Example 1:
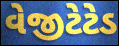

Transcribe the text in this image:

વેજીટેટેડ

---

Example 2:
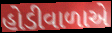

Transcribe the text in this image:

હોડીવાળાએ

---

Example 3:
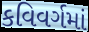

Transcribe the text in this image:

કવિવર્ગમાં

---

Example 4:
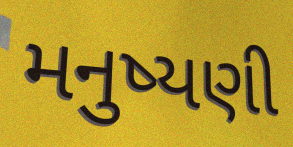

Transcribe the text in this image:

મનુષ્યણી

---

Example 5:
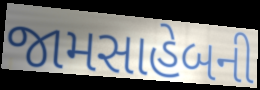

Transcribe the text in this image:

જામસાહેબની